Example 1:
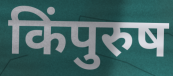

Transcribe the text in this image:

किंपुरुष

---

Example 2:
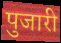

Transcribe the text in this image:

पुजारी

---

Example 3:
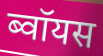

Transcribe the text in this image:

ब्वॉयस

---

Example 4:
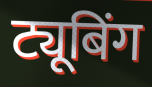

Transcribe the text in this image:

ट्यूबिंग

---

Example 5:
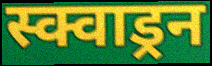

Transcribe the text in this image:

स्क्वाड्रन